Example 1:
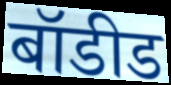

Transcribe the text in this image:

बॉडीड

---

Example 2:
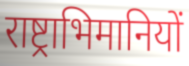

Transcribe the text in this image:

राष्ट्राभिमानियों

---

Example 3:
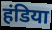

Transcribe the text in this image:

हंडिया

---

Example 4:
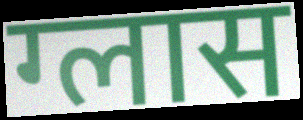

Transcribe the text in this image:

ग्लास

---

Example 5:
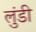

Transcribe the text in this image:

लुंडी